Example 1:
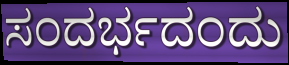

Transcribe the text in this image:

ಸಂದರ್ಭದಂದು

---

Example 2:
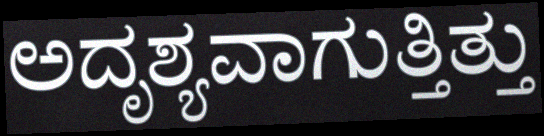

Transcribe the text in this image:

ಅದೃಶ್ಯವಾಗುತ್ತಿತ್ತು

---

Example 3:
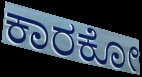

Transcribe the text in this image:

ಕಾರಕೋ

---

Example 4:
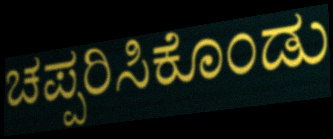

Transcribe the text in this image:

ಚಪ್ಪರಿಸಿಕೊಂಡು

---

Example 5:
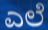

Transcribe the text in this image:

ಎಲೆ